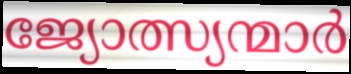
ജ്യോത്സ്യന്മാർ